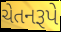
ચેતનરૂપે